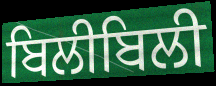
ਬਿਲੀਬਿਲੀ